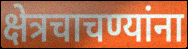
क्षेत्रचाचण्यांना